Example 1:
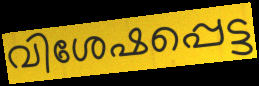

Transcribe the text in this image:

വിശേഷപ്പെട്ട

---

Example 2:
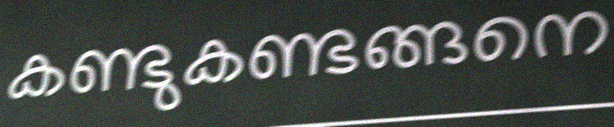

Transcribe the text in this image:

കണ്ടുകണ്ടങ്ങനെ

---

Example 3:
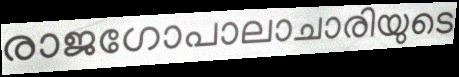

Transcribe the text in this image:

രാജഗോപാലാചാരിയുടെ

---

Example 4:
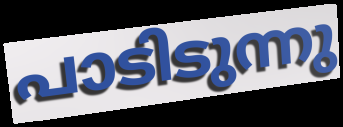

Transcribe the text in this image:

പാടിടുന്നു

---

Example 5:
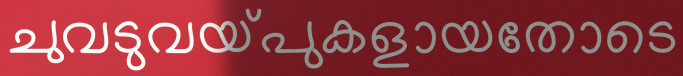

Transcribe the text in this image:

ചുവടുവയ്‌പുകളായതോടെ